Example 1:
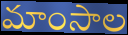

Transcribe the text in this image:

మాంసాల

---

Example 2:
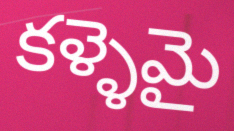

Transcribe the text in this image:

కళ్ళెమై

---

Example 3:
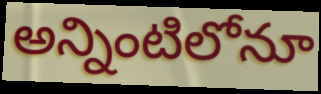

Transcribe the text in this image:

అన్నింటిలోనూ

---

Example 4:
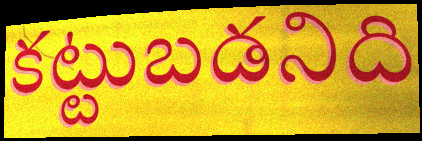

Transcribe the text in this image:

కట్టుబడనిది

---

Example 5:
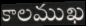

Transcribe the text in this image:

కాలముఖ